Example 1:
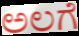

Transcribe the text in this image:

ಅಲಗೆ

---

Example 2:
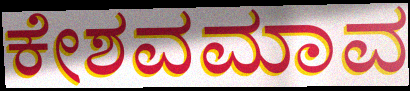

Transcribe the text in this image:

ಕೇಶವಮಾವ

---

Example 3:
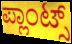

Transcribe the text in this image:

ಪ್ಲಾಂಟ್ಸ್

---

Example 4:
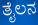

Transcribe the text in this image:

ತೈಲನ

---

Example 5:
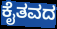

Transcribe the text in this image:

ಕೈತವದ